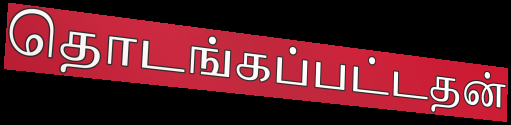
தொடங்கப்பட்டதன்